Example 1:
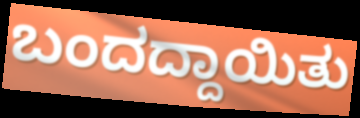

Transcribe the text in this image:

ಬಂದದ್ದಾಯಿತು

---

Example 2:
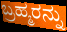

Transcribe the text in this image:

ಬ್ರಹ್ಮರನ್ನು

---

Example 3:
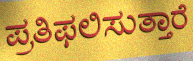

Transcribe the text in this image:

ಪ್ರತಿಫಲಿಸುತ್ತಾರೆ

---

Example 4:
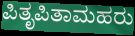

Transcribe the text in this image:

ಪಿತೃಪಿತಾಮಹರು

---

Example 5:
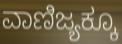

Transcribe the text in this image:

ವಾಣಿಜ್ಯಕ್ಕೂ